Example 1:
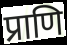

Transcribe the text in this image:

प्राणि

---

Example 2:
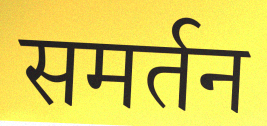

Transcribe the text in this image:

समर्तन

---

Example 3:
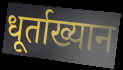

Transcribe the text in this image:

धूर्ताख्यान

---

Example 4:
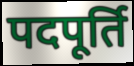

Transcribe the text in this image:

पदपूर्ति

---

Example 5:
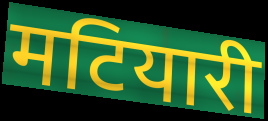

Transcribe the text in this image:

मटियारी